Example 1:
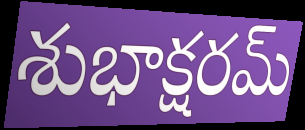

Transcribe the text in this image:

శుభాక్షరమ్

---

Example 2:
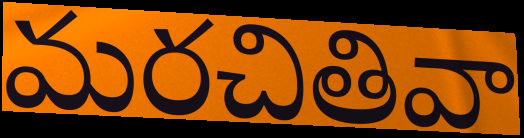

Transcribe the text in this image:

మరచితివా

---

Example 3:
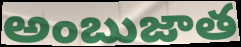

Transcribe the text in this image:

అంబుజాత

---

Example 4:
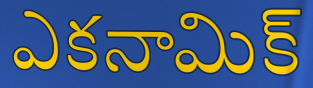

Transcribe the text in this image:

ఎకనామిక్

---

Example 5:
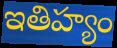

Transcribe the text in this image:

ఇతిహ్యం